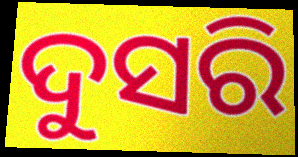
ଦୁସରି